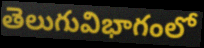
తెలుగువిభాగంలో